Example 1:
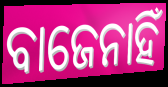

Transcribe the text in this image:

ବାଜେନାହିଁ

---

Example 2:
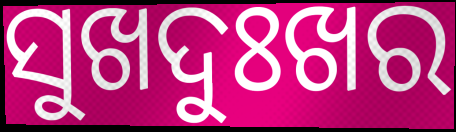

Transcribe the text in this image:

ସୁଖଦୁଃଖର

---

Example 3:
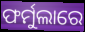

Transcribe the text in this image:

ଫର୍ମୁଲାରେ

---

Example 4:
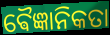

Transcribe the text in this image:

ଵୈଜ୍ଞାନିକତା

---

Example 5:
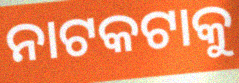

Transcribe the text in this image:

ନାଟକଟାକୁ